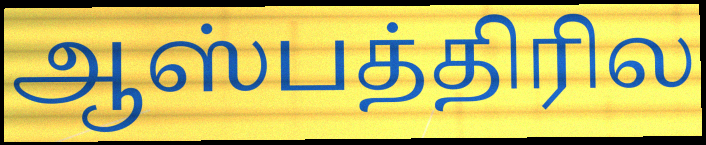
ஆஸ்பத்திரில